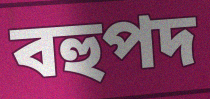
বহুপদ